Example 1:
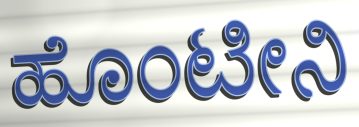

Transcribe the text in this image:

ಹೊಂಟೀನಿ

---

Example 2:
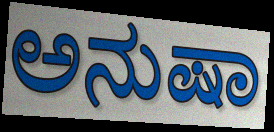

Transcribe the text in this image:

ಅನುಷಾ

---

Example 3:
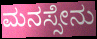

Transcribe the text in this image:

ಮನಸ್ಸೇನು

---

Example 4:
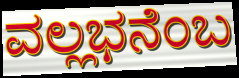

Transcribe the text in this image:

ವಲ್ಲಭನೆಂಬ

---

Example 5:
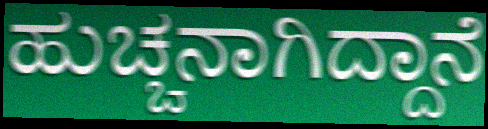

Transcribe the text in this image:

ಹುಚ್ಚನಾಗಿದ್ದಾನೆ